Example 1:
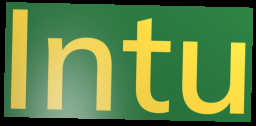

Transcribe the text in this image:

Intu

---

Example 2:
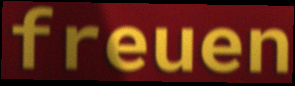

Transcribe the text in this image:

freuen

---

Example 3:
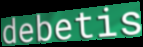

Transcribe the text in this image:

debetis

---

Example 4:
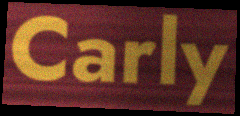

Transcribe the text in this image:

Carly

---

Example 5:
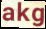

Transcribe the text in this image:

akg